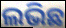
ଲଭିଛ